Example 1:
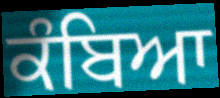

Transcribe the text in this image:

ਕੰਬਿਆ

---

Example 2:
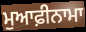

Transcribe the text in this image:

ਮੁਆਫ਼ੀਨਾਮਾ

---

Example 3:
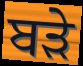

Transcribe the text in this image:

ਬਡ਼ੇ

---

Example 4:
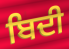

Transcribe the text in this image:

ਬਿਦੀ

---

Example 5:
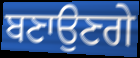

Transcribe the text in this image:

ਬਣਾਉਣਗੇ